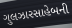
ગુલઝારસાહેબની